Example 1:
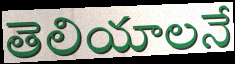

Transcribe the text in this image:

తెలియాలనే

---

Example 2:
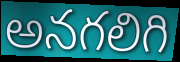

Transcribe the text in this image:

అనగలిగి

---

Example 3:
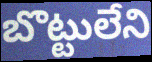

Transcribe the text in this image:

బొట్టులేని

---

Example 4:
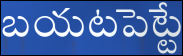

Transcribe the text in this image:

బయటపెట్టే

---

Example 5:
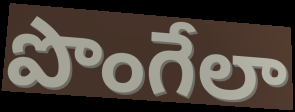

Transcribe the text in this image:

పొంగేలా